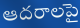
ఆదరాలపై